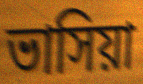
ভাসিয়া